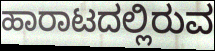
ಹಾರಾಟದಲ್ಲಿರುವ